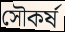
সৌকর্ষ